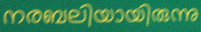
നരബലിയായിരുന്നു